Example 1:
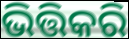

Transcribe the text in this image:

ଭିତ୍ତିକରି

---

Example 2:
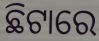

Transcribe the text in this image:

ଛିଟାରେ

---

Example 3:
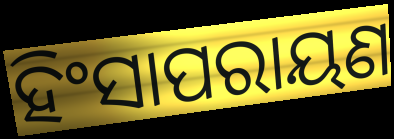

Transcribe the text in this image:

ହିଂସାପରାୟଣ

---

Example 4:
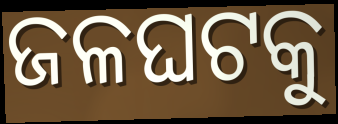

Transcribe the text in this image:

ଜଳଘଟକୁ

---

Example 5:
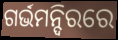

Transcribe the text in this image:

ଗର୍ଭମନ୍ଦିରରେ